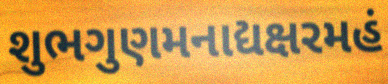
શુભગુણમનાદ્યક્ષરમહં